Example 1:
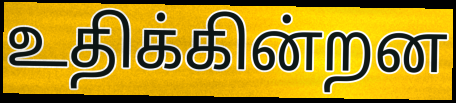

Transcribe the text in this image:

உதிக்கின்றன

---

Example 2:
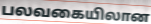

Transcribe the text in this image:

பலவகையிலான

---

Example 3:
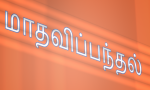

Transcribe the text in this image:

மாதவிப்பந்தல்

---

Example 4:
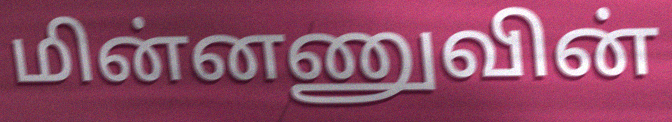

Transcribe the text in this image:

மின்னணுவின்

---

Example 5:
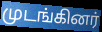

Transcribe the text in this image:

முடங்கினர்